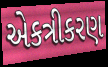
એકત્રીકરણ